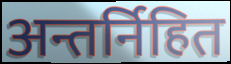
अन्तर्निहित